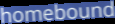
homebound